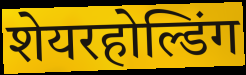
शेयरहोल्डिंग